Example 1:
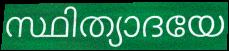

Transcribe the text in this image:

സ്ഥിത്യാദയേ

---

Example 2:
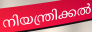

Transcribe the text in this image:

നിയന്ത്രിക്കൽ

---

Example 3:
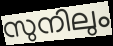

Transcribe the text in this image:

സുനിലും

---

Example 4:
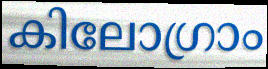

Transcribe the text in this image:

കിലോഗ്രാം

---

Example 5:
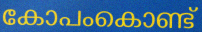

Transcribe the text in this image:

കോപംകൊണ്ട്